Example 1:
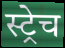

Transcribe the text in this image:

स्ट्रेच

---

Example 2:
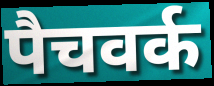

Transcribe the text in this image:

पैचवर्क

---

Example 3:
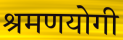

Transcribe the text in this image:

श्रमणयोगी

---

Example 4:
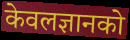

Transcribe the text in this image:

केवलज्ञानको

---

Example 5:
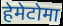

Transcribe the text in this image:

हेमेटोमा